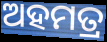
ଅହମତ୍ର